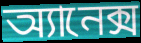
অ্যানেক্স